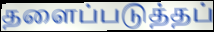
தளைப்படுத்தப்